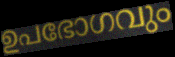
ഉപഭോഗവും